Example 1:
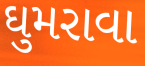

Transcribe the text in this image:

ઘુમરાવા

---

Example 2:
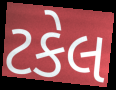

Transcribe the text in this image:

ટકેલ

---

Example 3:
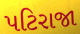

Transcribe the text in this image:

પટિરાજા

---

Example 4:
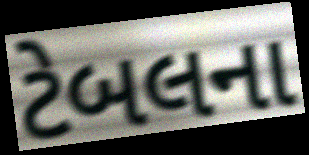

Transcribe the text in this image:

ટેબલના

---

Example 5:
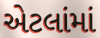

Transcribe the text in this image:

એટલાંમાં